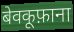
बेवकूफ़ाना